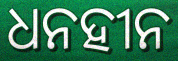
ଧନହୀନ